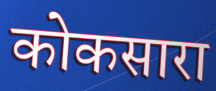
कोकसारा